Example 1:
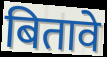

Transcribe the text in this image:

बितावे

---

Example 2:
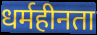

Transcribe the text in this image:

धर्महीनता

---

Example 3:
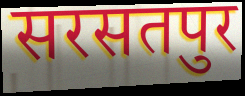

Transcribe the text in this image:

सरसतपुर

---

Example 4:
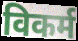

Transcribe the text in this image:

विकर्म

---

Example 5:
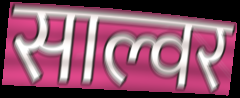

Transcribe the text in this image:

साल्वर